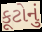
કૂટોનું